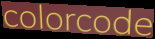
colorcode